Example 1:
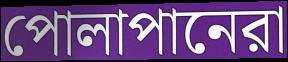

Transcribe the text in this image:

পোলাপানেরা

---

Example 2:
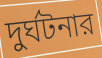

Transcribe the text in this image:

দুর্ঘটনার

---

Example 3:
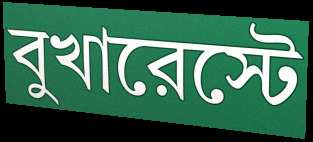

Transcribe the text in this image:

বুখারেস্টে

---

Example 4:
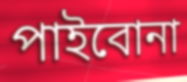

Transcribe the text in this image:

পাইবোনা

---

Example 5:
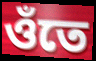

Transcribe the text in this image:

ওঁতে